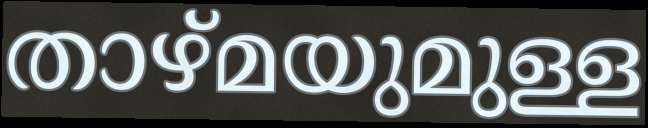
താഴ്മയുമുള്ള